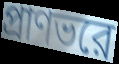
প্রাণভরে